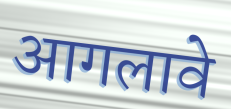
आगलावे